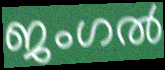
ജംഗൽ